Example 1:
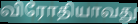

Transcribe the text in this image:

விரோதியாவது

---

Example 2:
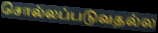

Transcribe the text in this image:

சொல்லப்படுவதல்ல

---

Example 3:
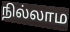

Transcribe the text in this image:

நில்லாம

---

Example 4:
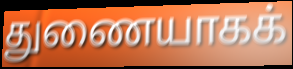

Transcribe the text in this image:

துணையாகக்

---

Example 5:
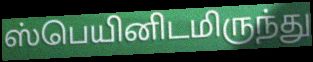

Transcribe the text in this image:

ஸ்பெயினிடமிருந்து